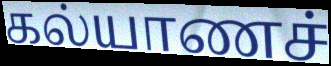
கல்யாணச்